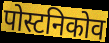
पोस्टनिकोव